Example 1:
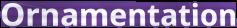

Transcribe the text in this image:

Ornamentation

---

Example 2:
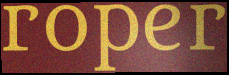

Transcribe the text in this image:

roper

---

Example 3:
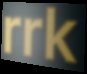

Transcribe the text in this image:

rrk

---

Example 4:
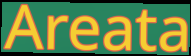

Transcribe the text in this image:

Areata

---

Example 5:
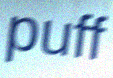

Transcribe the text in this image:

puff